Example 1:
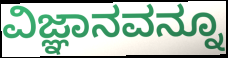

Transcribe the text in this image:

ವಿಜ್ಞಾನವನ್ನೂ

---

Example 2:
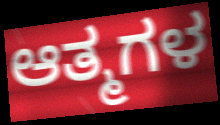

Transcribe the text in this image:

ಆತ್ಮಗಳ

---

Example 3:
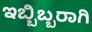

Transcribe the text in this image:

ಇಬ್ಬಿಬ್ಬರಾಗಿ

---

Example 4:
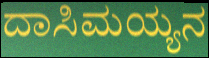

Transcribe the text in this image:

ದಾಸಿಮಯ್ಯನ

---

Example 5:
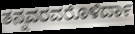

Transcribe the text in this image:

ತನ್ನವರವರೊಳಿರ್ದಾ